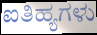
ಐತಿಹ್ಯಗಳು